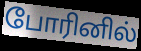
போரினில்